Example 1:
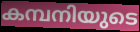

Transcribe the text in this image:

കമ്പനിയുടെ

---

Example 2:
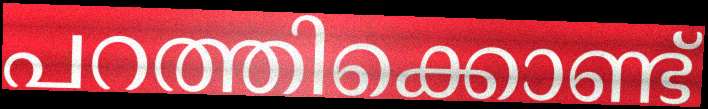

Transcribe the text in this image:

പറത്തിക്കൊണ്ട്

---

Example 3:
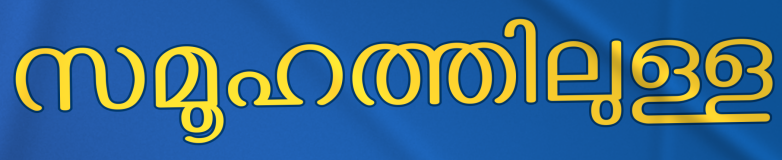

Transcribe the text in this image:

സമൂഹത്തിലുള്ള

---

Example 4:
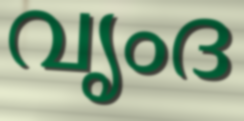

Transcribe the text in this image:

വൃംദ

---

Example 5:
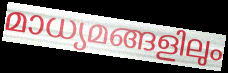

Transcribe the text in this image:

മാധ്യമങ്ങളിലും